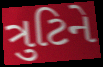
ત્રુટિને